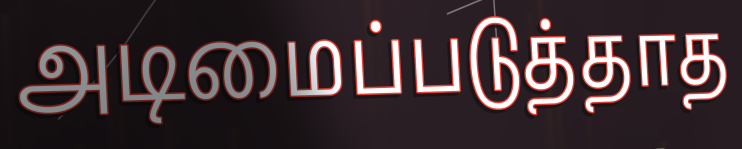
அடிமைப்படுத்தாத